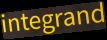
integrand